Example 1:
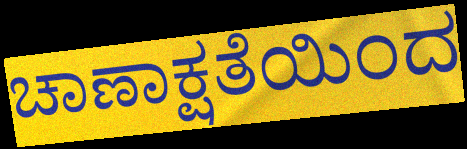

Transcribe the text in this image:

ಚಾಣಾಕ್ಷತೆಯಿಂದ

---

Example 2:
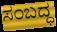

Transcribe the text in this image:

ಸಂಬದ್ಧ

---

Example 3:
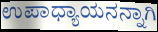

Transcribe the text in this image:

ಉಪಾಧ್ಯಾಯನನ್ನಾಗಿ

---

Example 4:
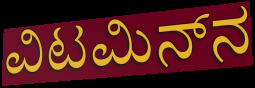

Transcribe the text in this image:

ವಿಟಮಿನ್‌ನ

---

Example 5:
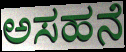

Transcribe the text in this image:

ಅಸಹನೆ